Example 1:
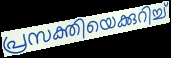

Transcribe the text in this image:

പ്രസക്തിയെക്കുറിച്ച്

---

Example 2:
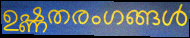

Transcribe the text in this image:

ഉഷ്ണതരംഗങ്ങൾ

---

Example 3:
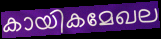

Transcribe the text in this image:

കായികമേഖല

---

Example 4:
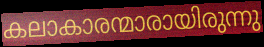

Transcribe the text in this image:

കലാകാരന്മാരായിരുന്നു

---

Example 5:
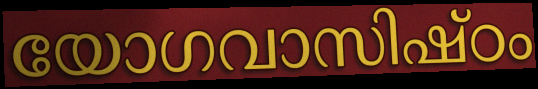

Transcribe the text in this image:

യോഗവാസിഷ്ഠം